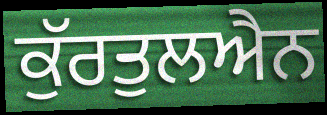
ਕੁੱਰਤੁਲਐਨ